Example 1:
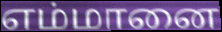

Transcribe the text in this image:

எம்மானை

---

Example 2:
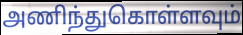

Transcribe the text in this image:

அணிந்துகொள்ளவும்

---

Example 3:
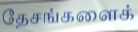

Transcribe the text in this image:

தேசங்களைக்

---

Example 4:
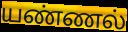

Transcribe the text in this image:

யண்ணல்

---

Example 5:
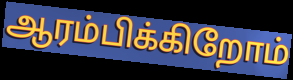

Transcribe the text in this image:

ஆரம்பிக்கிறோம்